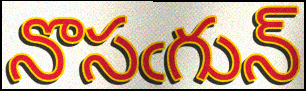
నొసఁగున్